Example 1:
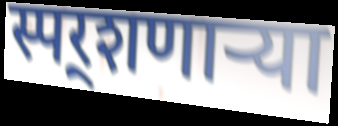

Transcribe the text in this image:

स्पर्शणाऱ्या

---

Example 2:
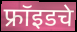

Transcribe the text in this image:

फ्रॉइडचे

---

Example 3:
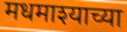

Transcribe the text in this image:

मधमाश्याच्या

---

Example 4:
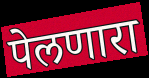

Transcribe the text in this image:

पेलणारा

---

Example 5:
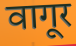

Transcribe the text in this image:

वागूर